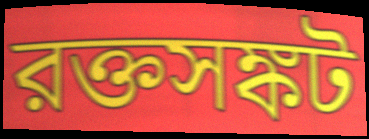
রক্তসঙ্কট